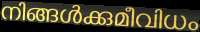
നിങ്ങൾക്കുമീവിധം